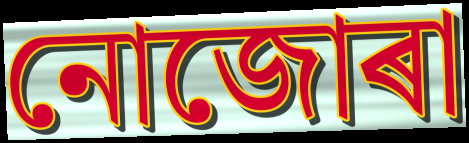
নোজোৰা